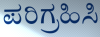
ಪರಿಗ್ರಹಿಸಿ